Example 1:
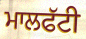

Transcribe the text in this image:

ਮਾਲਫੱਟੀ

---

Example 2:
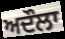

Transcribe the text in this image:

ਅਦੌਲਾ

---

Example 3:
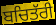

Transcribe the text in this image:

ਬਚਿਤੱਰੀ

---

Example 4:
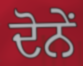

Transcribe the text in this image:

ਦੋਨੇਂ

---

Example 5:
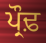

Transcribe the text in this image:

ਪ੍ਰੌਢ਼